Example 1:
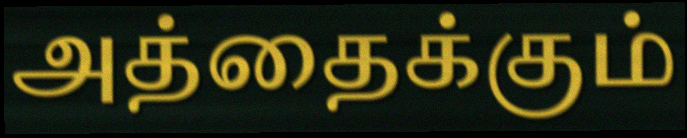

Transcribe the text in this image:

அத்தைக்கும்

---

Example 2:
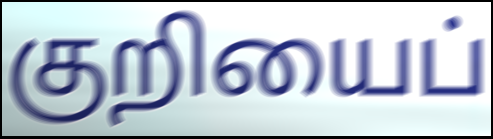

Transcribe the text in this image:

குறியைப்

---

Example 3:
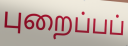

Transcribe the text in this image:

புறைப்பப்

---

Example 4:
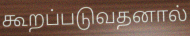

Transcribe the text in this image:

கூறப்படுவதனால்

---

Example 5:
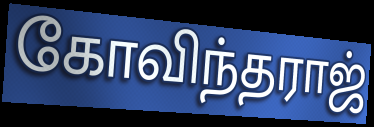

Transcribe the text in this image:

கோவிந்தராஜ்